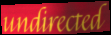
undirected